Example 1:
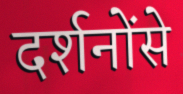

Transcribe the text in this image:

दर्शनोंसे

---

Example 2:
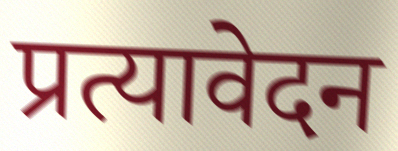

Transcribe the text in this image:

प्रत्यावेदन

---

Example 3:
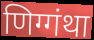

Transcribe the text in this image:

णिग्गंथा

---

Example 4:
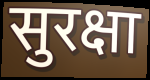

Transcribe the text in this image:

सुरक्षा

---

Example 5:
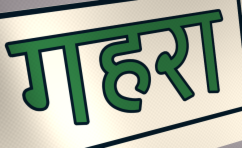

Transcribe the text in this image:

गहरा